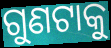
ଗୁଣଟାକୁ